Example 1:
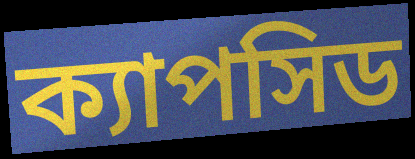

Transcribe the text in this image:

ক্যাপসিড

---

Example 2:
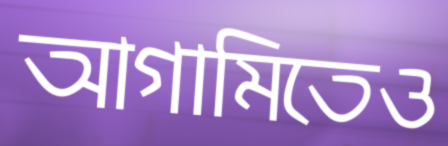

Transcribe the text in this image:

আগামিতেও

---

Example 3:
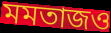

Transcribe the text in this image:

মমতাজও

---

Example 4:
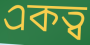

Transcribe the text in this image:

একত্ব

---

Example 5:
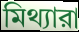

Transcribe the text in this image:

মিথ্যারা